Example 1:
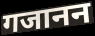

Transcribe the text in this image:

गजानन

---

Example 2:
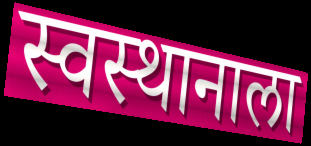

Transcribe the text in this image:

स्वस्थानाला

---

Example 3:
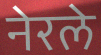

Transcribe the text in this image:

नेरले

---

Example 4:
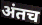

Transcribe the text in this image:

अंतच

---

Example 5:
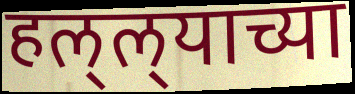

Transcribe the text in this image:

हल्ल्याच्या